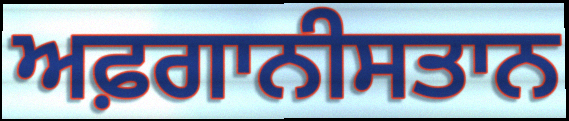
ਅਫ਼ਗਾਨੀਸਤਾਨ